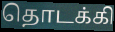
தொடக்கி